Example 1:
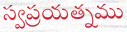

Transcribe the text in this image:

స్వప్రయత్నము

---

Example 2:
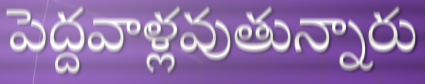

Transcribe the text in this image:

పెద్దవాళ్లవుతున్నారు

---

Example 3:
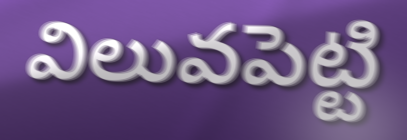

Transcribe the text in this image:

విలువపెట్టి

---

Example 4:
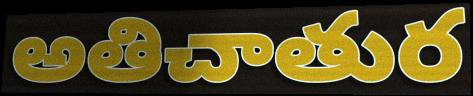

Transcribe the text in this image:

అతిచాతుర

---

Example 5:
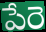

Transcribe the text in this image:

పేరె